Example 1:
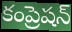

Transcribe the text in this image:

కంప్రెషన్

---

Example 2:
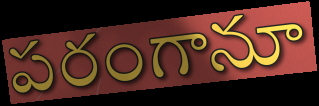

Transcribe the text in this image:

పరంగానూ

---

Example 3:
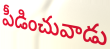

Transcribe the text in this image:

పీడించువాడు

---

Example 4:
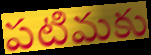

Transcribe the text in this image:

పటిమకు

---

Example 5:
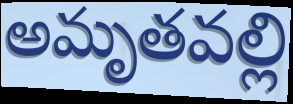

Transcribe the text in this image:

అమృతవల్లి